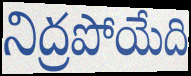
నిద్రపోయేది